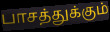
பாசத்துக்கும்